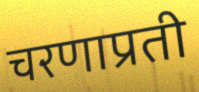
चरणाप्रती